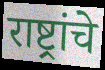
राष्ट्रांचे